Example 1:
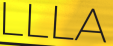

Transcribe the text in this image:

LLLA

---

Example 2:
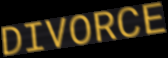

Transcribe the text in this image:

DIVORCE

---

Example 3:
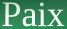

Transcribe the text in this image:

Paix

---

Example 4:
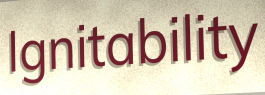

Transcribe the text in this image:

Ignitability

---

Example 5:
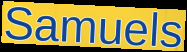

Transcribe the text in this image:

Samuels